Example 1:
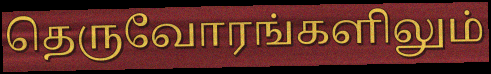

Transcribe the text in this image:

தெருவோரங்களிலும்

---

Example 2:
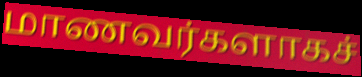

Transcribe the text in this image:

மாணவர்களாகச்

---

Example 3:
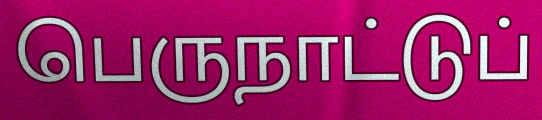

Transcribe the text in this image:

பெருநாட்டுப்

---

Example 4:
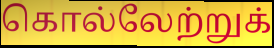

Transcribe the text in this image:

கொல்லேற்றுக்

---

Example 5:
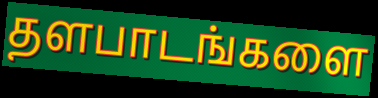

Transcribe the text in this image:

தளபாடங்களை